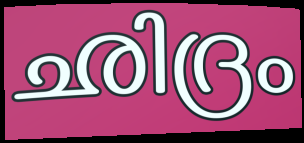
ഛിദ്രം